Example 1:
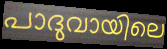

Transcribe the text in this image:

പാദുവായിലെ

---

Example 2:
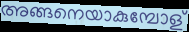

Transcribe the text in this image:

അങ്ങനെയാകുമ്പോള്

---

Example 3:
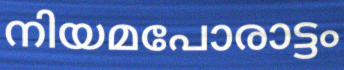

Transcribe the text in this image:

നിയമപോരാട്ടം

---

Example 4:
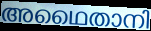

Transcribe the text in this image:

അഥൈതാനി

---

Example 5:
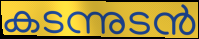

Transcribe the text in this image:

കടന്നുടൻ